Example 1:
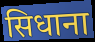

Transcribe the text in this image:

सिधाना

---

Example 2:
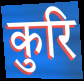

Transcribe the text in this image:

कुरि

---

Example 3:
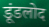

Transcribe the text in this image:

डूंडलोद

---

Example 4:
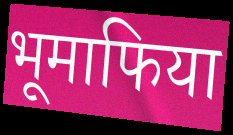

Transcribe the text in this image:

भूमाफिया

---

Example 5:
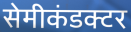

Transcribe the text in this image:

सेमीकंडक्टर